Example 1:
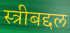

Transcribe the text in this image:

स्त्रीबद्दल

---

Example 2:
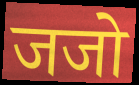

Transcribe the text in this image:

जजो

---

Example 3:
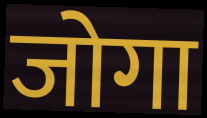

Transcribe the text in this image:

जोगा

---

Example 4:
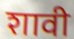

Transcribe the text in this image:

शावी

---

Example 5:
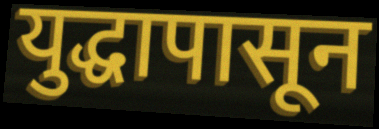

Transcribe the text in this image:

युद्धापासून